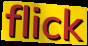
flick